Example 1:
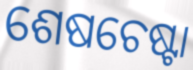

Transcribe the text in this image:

ଶେଷଚେଷ୍ଟା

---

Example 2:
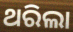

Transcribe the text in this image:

ଥରିଲା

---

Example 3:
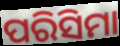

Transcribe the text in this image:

ପରିସିମା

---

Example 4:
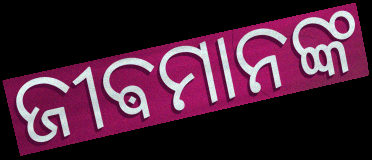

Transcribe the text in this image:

ଜୀଵମାନଙ୍କ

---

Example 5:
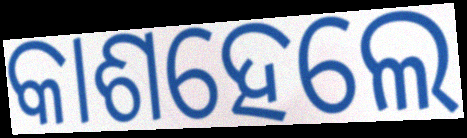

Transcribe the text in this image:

କାଶହେଲେ